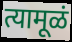
त्यामूळं